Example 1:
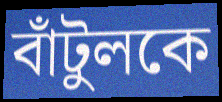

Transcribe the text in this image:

বাঁটুলকে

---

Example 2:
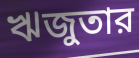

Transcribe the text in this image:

ঋজুতার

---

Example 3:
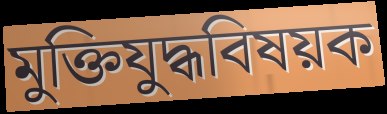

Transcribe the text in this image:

মুক্তিযুদ্ধবিষয়ক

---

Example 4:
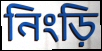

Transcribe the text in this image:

নিংড়ি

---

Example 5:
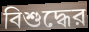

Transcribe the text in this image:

বিশুদ্ধের